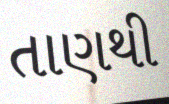
તાણથી